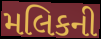
મલિકની